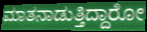
ಮಾತನಾಡುತ್ತಿದ್ದಾರೋ